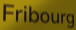
Fribourg